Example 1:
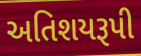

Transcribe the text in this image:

અતિશયરૂપી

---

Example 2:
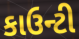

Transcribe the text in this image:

કાઉન્ટી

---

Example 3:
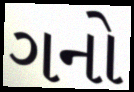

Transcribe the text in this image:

ગનો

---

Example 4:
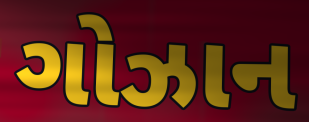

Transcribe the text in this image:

ગોઝાન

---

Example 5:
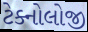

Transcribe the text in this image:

ટેક્નોલોજી